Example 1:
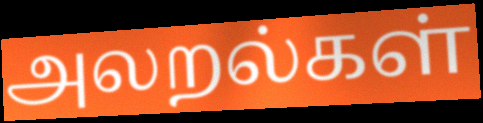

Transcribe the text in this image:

அலறல்கள்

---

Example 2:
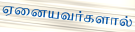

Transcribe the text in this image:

ஏனையவர்களால்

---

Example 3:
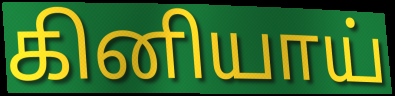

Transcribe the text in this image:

கினியாய்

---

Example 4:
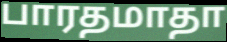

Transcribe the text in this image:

பாரதமாதா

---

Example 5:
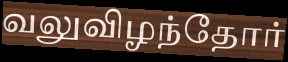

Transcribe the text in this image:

வலுவிழந்தோர்